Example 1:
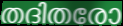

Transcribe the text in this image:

തദിതരോ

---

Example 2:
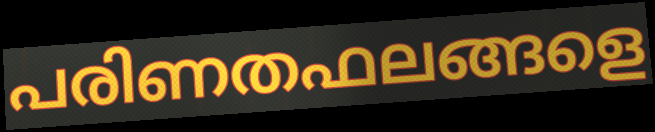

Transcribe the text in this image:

പരിണതഫലങ്ങളെ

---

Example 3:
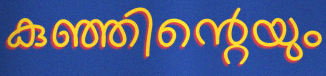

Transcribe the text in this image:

കുഞ്ഞിന്റെയും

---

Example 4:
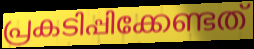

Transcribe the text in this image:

പ്രകടിപ്പിക്കേണ്ടത്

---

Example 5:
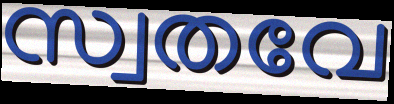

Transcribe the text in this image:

സ്വതവേ